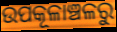
ଉପକୂଳାଞ୍ଚଳରୁ